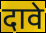
दावे